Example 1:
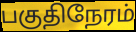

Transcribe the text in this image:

பகுதிநேரம்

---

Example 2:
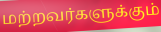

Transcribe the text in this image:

மற்றவர்களுக்கும்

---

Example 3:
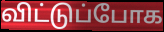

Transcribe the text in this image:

விட்டுப்போக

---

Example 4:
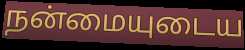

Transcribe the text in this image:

நன்மையுடைய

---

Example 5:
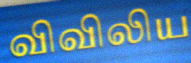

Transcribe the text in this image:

விவிலிய